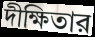
দীক্ষিতার